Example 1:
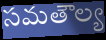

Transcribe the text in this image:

సమతౌల్య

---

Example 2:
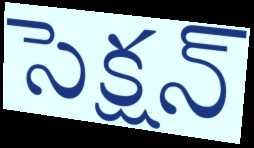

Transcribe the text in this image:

సెక్షన్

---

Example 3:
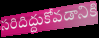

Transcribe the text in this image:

సరిదిద్దుకోవడానికి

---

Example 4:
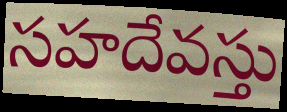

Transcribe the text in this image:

సహదేవస్తు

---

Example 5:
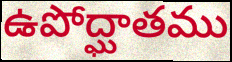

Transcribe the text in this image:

ఉపోద్ఘాతము